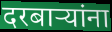
दरबाऱ्यांना